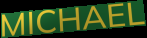
MICHAEL